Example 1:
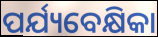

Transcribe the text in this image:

ପର୍ଯ୍ୟବେକ୍ଷିକା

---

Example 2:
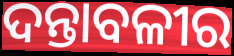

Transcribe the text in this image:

ଦନ୍ତାବଳୀର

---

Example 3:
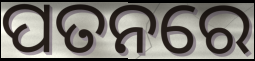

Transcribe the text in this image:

ପତନରେ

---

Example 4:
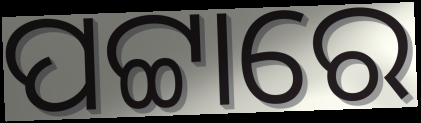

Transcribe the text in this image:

ପଟ୍ଟାରେ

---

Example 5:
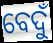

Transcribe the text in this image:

ବେଦୁଁ